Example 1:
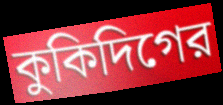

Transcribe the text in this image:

কুকিদিগের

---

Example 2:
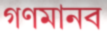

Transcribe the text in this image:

গণমানব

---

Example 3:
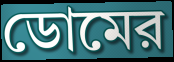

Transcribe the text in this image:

ডোমের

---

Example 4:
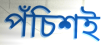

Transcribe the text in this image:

পঁচিশই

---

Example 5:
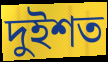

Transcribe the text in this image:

দুইশত